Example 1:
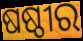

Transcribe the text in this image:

ଷଷ୍ଠୀର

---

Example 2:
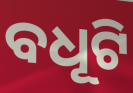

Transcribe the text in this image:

ବଧୂଟି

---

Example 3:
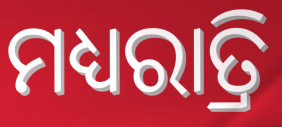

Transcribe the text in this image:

ମଧ୍ଯରାତ୍ରି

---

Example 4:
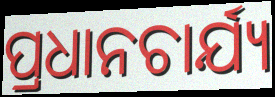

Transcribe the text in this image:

ପ୍ରଧାନଚାର୍ଯ୍ୟ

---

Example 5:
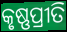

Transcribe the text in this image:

କୃଷ୍ଣପ୍ରୀତି